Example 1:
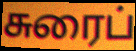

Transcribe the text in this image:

சுரைப்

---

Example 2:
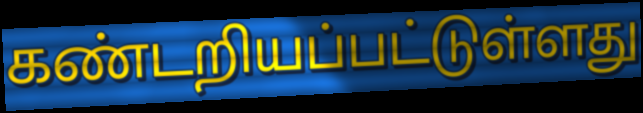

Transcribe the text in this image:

கண்டறியப்பட்டுள்ளது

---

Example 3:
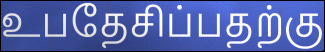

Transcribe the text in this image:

உபதேசிப்பதற்கு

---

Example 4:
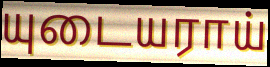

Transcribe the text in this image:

யுடையராய்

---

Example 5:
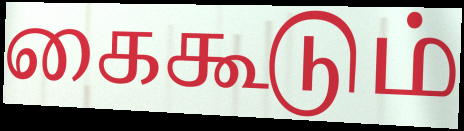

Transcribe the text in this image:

கைகூடும்